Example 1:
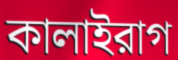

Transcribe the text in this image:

কালাইরাগ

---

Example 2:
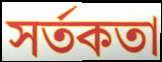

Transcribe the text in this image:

সর্তকতা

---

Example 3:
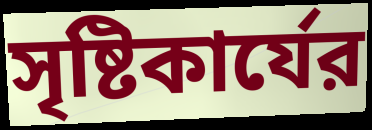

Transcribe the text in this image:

সৃষ্টিকার্যের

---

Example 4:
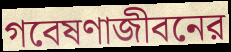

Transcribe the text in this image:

গবেষণাজীবনের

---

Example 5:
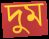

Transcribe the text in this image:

দুম